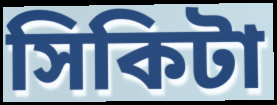
সিকিটা